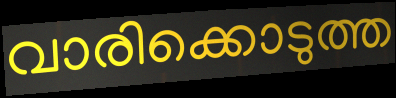
വാരിക്കൊടുത്ത